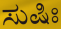
ಸುಷಿಃ